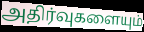
அதிர்வுகளையும்